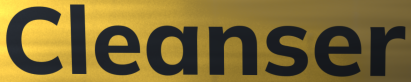
Cleanser